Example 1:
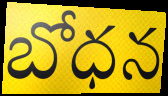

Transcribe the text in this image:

బోధన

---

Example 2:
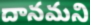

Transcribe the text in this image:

దానమని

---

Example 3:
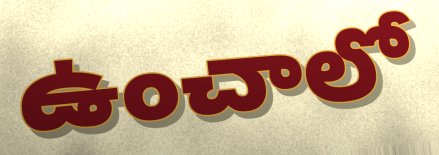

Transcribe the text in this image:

ఉంచాలో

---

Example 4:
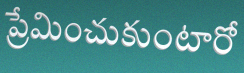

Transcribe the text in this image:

ప్రేమించుకుంటారో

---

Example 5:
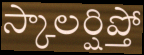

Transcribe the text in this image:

స్కాలర్షిప్తో